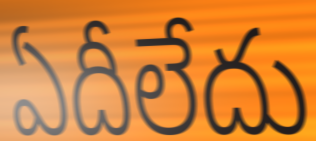
ఏదీలేదు